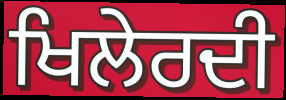
ਖਿਲੇਰਦੀ